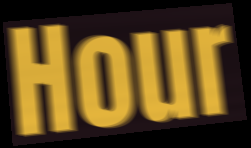
Hour